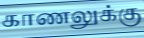
காணலுக்கு